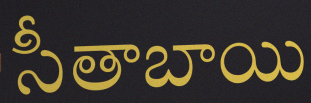
సీతాబాయి